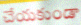
చేయకుండా